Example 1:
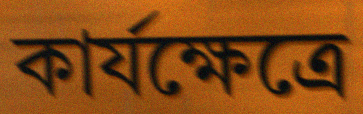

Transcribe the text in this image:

কার্যক্ষেত্রে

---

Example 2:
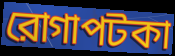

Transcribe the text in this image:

রোগাপটকা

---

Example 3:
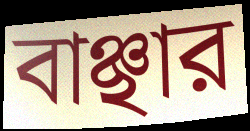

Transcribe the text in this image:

বাঞ্ছার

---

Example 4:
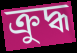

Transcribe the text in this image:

ক্রুদ্ধ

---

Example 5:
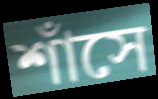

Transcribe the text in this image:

শাঁসে